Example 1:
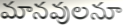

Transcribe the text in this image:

మానవులనూ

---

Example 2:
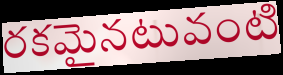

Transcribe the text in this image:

రకమైనటువంటి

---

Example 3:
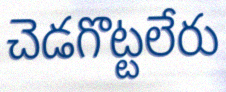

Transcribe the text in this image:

చెడగొట్టలేరు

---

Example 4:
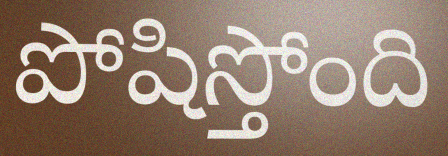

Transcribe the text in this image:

పోషిస్తోంది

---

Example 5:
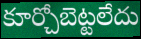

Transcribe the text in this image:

కూర్చోబెట్టలేదు